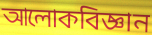
আলোকবিজ্ঞান